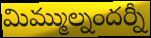
మిమ్ముల్నందర్నీ